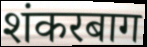
शंकरबाग